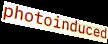
photoinduced